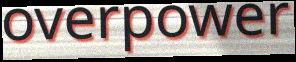
overpower